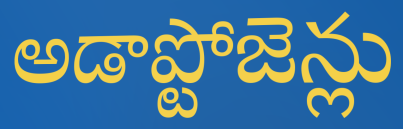
అడాప్టోజెన్లు